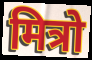
मित्रो